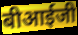
बीआईजी